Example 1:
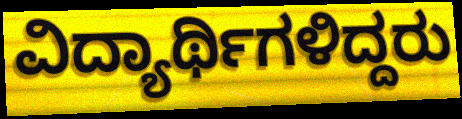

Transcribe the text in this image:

ವಿದ್ಯಾರ್ಥಿಗಳಿದ್ದರು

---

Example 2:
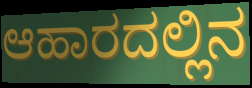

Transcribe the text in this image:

ಆಹಾರದಲ್ಲಿನ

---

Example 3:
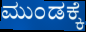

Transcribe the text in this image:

ಮುಂಡಕ್ಕೆ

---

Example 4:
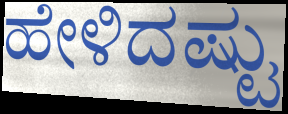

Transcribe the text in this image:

ಹೇಳಿದಷ್ಟು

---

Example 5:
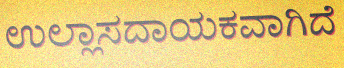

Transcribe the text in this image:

ಉಲ್ಲಾಸದಾಯಕವಾಗಿದೆ